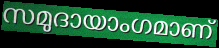
സമുദായാംഗമാണ്